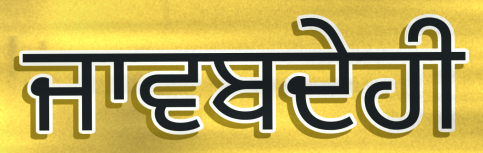
ਜਾਵਬਦੇਹੀ